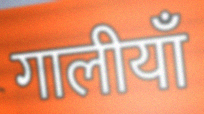
गालीयाँ